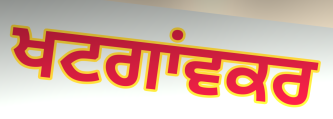
ਖਟਗਾਂਵਕਰ